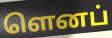
ளெனப்